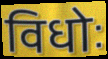
विधोः